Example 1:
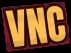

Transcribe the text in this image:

VNC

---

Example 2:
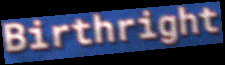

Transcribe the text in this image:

Birthright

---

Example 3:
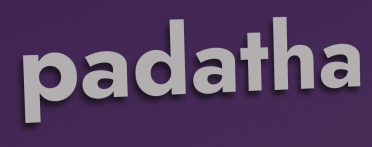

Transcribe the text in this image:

padatha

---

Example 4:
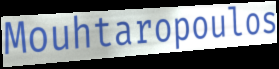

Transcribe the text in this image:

Mouhtaropoulos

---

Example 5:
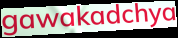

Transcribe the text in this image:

gawakadchya